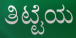
ತಿಟ್ಟೆಯ